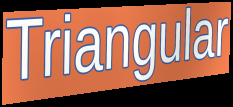
Triangular